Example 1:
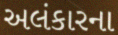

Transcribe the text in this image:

અલંકારના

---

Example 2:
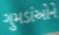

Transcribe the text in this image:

ગુમડાંઓને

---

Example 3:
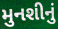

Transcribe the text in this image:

મુનશીનું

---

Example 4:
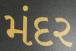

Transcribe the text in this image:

મંદર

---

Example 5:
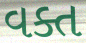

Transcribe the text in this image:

વક્ત